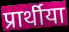
प्रार्थीया